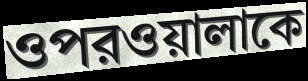
ওপরওয়ালাকে